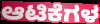
ಆಟಿಕೆಗಳ